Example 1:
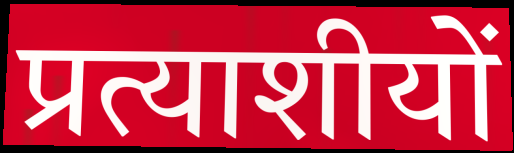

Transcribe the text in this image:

प्रत्याशीयों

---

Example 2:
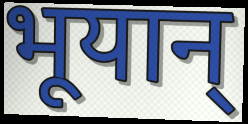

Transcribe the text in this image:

भूयान्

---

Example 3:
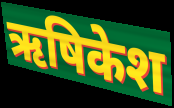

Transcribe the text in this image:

ऋषिकेश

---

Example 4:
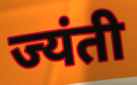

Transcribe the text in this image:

ज्यंती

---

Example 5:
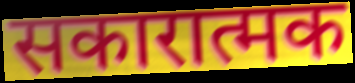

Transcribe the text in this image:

सकारात्मक